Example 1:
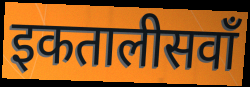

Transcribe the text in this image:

इकतालीसवाँ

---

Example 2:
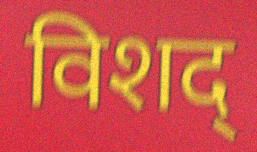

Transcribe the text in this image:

विशद्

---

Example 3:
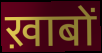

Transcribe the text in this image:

ख़ाबों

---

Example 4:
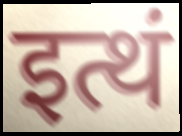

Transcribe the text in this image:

इत्थं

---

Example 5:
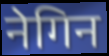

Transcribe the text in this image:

नेगिन